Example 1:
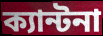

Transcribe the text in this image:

ক্যান্টনা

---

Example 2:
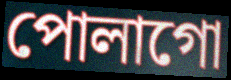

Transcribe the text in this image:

পোলাগো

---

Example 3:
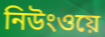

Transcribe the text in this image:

নিউংওয়ে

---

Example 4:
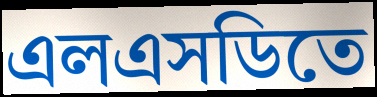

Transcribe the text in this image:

এলএসডিতে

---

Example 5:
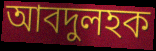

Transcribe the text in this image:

আবদুলহক